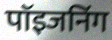
पॉइजनिंग